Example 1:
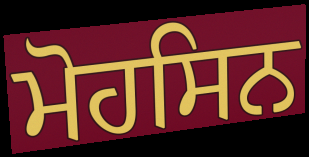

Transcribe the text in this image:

ਮੋਹਸਿਨ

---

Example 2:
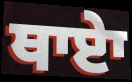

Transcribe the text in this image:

ਥਾਏਾ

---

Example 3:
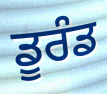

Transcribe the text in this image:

ਡੂਰੰਡ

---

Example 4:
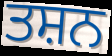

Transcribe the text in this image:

ਤਸ਼ਨ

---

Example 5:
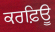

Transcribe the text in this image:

ਕਰਫ਼ਿਊ